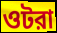
ওটরা